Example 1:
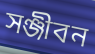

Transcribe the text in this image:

সঞ্জীবন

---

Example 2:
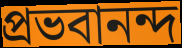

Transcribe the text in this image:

প্রভবানন্দ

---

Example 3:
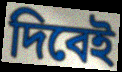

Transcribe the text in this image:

দিবেই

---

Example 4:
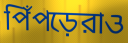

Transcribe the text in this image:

পিঁপড়েরাও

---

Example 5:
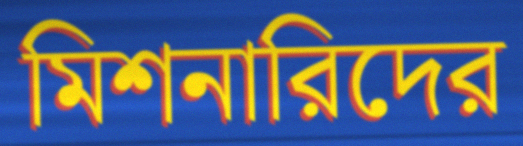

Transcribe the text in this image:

মিশনারিদের